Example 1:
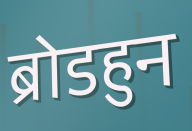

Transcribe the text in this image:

ब्रोडहुन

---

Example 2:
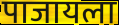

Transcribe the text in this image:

पाजायला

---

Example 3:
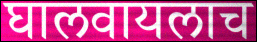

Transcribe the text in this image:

घालवायलाच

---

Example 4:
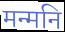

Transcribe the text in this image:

मन्मनि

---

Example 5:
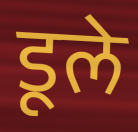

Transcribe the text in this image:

डूले